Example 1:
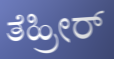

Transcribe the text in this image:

ತೆಹ್ರೀರ್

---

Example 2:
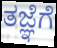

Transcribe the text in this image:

ತಜ್ಞೆಗೆ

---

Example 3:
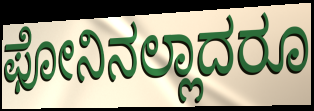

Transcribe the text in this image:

ಫೋನಿನಲ್ಲಾದರೂ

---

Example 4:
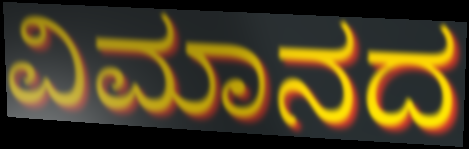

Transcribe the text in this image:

ವಿಮಾನದ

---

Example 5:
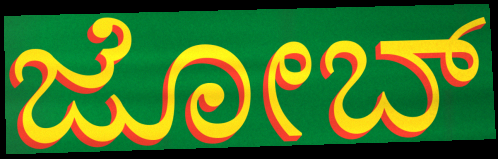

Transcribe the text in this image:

ಜೋಬ್